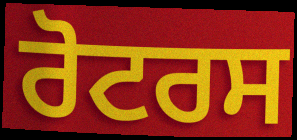
ਰੋਟਰਸ